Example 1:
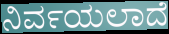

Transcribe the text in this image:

ನಿರ್ವಯಲಾದೆ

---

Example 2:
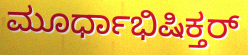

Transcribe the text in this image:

ಮೂರ್ಧಾಭಿಷಿಕ್ತರ್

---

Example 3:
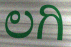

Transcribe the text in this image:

ಲಗಿ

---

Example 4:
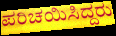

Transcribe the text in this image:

ಪರಿಚಯಿಸಿದ್ದರು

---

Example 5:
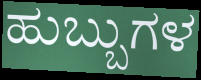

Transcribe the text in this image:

ಹುಬ್ಬುಗಳ